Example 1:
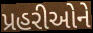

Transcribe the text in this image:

પ્રહરીઓને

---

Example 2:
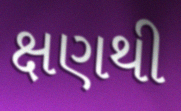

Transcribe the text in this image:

ક્ષણથી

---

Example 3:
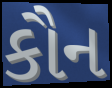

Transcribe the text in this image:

કૌન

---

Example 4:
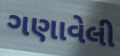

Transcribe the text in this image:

ગણાવેલી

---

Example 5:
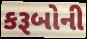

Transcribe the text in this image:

કરૂબોની